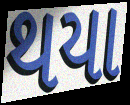
થયા